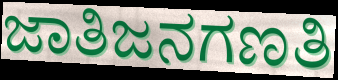
ಜಾತಿಜನಗಣತಿ